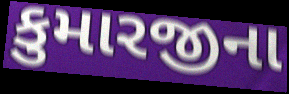
કુમારજીના